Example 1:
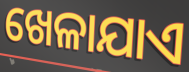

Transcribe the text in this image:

ଖେଳାଯାଏ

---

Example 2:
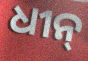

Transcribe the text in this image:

ଧୀନ୍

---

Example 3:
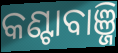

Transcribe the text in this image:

କଣ୍ଟାବାଞ୍ଜି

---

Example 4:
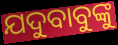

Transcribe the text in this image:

ଯଦୁବାବୁଙ୍କୁ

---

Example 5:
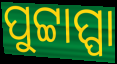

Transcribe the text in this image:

ପୁଟ୍ଟାପ୍ପା